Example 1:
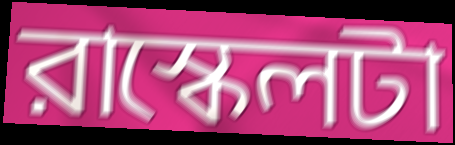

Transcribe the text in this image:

রাস্কেলটা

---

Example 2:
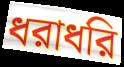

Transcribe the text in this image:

ধরাধরি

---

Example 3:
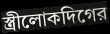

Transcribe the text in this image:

স্ত্রীলোকদিগের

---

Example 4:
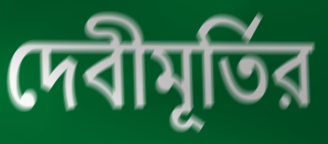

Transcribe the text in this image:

দেবীমূর্তির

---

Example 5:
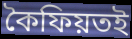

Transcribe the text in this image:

কৈফিয়তই